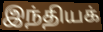
இந்தியக்